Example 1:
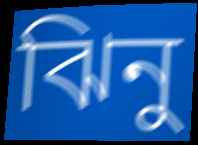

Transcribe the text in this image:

ঝিনু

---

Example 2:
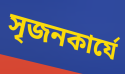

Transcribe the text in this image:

সৃজনকার্যে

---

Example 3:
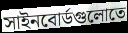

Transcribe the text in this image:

সাইনবোর্ডগুলোতে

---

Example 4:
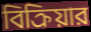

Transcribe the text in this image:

বিক্রিয়ার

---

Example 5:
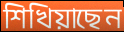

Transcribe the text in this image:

শিখিয়াছেন